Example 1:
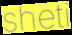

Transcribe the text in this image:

sheti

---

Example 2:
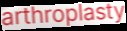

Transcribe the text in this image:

arthroplasty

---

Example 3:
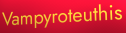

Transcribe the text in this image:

Vampyroteuthis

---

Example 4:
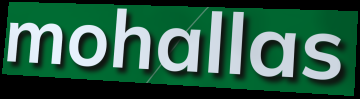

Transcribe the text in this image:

mohallas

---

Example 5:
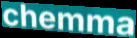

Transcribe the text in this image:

chemma